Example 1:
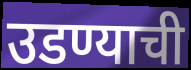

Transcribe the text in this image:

उडण्याची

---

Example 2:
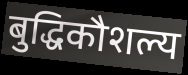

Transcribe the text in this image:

बुद्धिकौशल्य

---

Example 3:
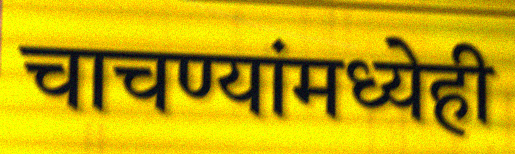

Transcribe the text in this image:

चाचण्यांमध्येही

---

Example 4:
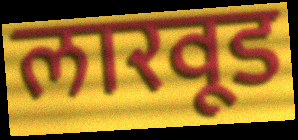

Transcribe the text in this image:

लारवूड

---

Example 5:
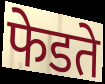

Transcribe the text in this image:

फेडते